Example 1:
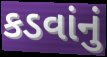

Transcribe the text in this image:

કડવાંનું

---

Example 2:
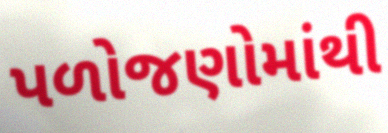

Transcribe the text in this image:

પળોજણોમાંથી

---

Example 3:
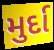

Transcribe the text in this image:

મુર્દા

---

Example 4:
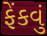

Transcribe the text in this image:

ફેંકવું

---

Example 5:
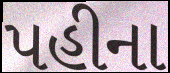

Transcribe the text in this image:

પહીના